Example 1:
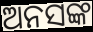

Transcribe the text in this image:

ଅନସଙ୍କ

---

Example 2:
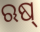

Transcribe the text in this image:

ଋଷ୍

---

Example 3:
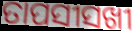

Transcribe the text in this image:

ତାପସୀସଖୀ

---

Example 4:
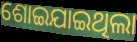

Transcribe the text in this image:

ଶୋଇଯାଇଥିଲା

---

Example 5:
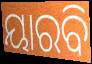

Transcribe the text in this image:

ୟାରବି